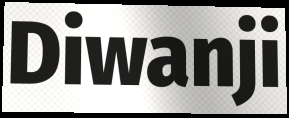
Diwanji